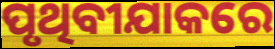
ପୃଥିବୀଯାକରେ